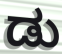
ಡು